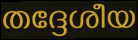
തദ്ദേശീയ